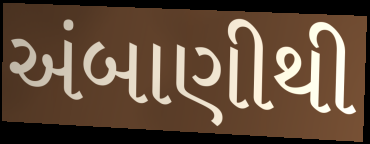
અંબાણીથી